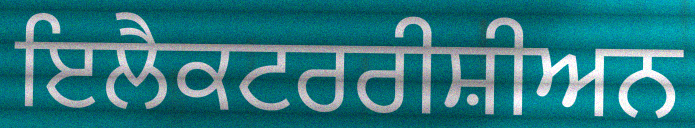
ਇਲੈਕਟਰਰੀਸ਼ੀਅਨ